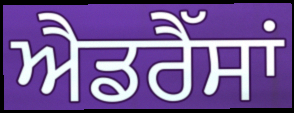
ਐਡਰੈੱਸਾਂ